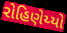
રોહિણેય્યો